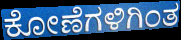
ಕೋಣೆಗಳಿಗಿಂತ